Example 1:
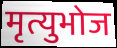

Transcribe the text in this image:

मृत्युभोज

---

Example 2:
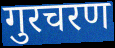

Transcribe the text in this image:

गुरचरण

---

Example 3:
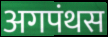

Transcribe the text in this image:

अगपंथस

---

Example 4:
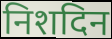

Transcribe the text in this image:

निशदिन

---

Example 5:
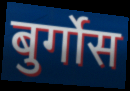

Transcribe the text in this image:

बुर्गोस